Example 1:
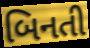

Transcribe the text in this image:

બિનતી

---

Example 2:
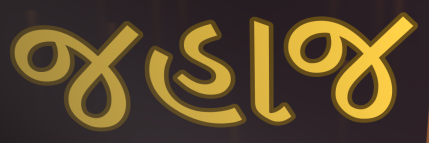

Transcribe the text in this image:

જહાજ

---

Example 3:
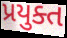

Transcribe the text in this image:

પ્રયુક્ત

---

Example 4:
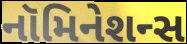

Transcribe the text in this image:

નૉમિનેશન્સ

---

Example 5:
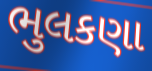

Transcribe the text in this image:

ભુલકણા